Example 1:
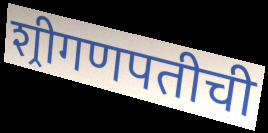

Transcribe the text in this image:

श्रीगणपतीची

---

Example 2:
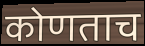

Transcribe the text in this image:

कोणताच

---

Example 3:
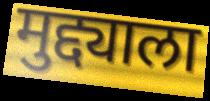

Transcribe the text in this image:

मुद्द्याला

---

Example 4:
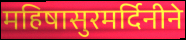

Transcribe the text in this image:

महिषासुरमर्दिनीने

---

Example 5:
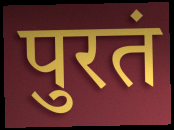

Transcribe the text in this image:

पुरतं